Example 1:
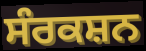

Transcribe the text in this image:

ਸੰਰਕਸ਼ਨ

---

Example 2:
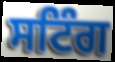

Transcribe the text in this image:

ਸਟਿੰਗ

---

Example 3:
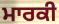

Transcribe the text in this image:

ਮਾਰਕੀ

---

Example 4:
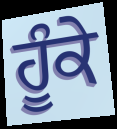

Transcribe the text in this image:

ਹੂੰਕੇ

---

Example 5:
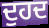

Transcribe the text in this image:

ਦੁਹਦ